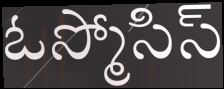
ఓస్మోసిస్